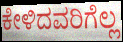
ಕೇಳಿದವರಿಗೆಲ್ಲ